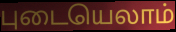
புடையெலாம்